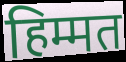
हिम्मत